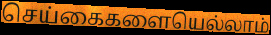
செய்கைகளையெல்லாம்